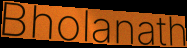
Bholanath